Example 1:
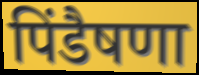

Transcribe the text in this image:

पिंडैषणा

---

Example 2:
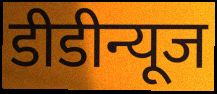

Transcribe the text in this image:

डीडीन्यूज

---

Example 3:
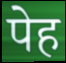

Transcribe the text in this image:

पेह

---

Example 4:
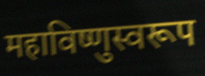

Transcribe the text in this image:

महाविष्णुस्वरूप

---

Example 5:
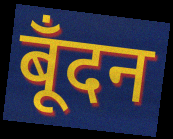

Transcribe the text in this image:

बूँदन